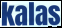
kalas